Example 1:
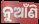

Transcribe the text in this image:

ନୁଆଁଣି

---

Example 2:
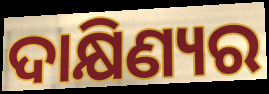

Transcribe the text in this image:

ଦାକ୍ଷିଣ୍ୟର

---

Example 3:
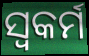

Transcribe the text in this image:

ସ୍ଵକର୍ମ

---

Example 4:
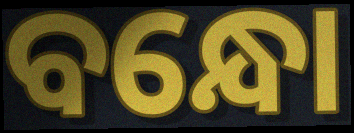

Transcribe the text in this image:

ବନ୍ଧୋ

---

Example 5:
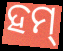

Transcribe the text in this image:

ହମ୍